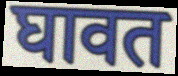
घावत